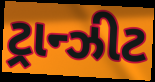
ટ્રાન્ઝીટ